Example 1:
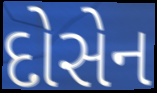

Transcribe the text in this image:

દોસેન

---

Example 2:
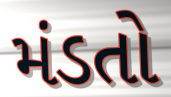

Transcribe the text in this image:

મંડતો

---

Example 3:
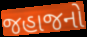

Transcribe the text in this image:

જહાજનો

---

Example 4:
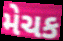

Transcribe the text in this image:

મેચક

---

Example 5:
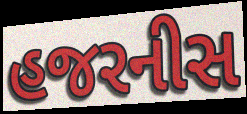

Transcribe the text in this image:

હજરનીસ